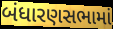
બંધારણસભામાં